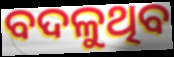
ବଦଳୁଥିବ